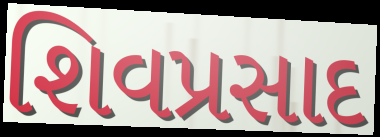
શિવપ્રસાદ